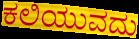
ಕಲಿಯುವದು